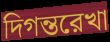
দিগন্তরেখা